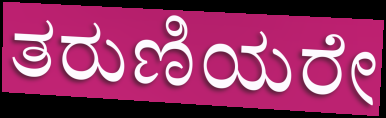
ತರುಣಿಯರೇ